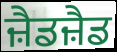
ਜ਼ੈਡਜ਼ੈਡ